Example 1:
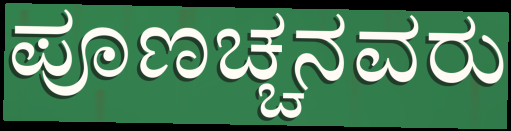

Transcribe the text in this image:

ಪೂಣಚ್ಚನವರು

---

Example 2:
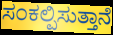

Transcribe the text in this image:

ಸಂಕಲ್ಪಿಸುತ್ತಾನೆ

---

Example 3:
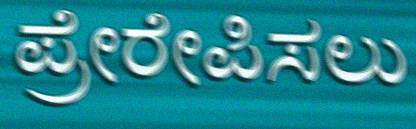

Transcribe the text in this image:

ಪ್ರೇರೇಪಿಸಲು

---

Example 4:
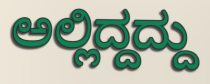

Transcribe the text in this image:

ಅಲ್ಲಿದ್ದದ್ದು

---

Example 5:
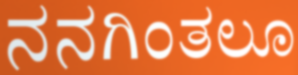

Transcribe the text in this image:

ನನಗಿಂತಲೂ